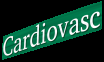
Cardiovasc